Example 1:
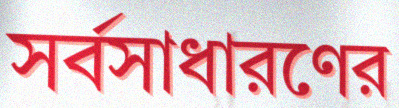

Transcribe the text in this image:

সর্বসাধারণের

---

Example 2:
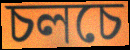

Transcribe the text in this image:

চলচে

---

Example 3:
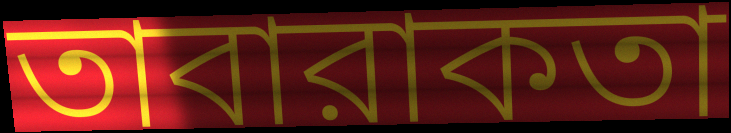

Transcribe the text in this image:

তাবারাকতা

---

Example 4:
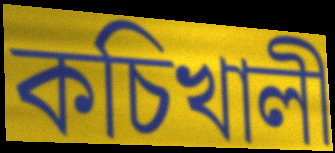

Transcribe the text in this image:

কচিখালী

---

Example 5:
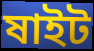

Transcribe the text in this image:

ষাইট